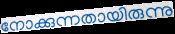
നോക്കുന്നതായിരുന്നു